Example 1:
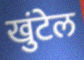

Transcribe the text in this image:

खुंटेल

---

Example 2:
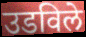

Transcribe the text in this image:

उडविले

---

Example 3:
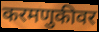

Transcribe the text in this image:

करमणुकीवर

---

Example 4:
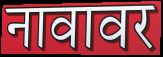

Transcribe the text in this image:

नावावर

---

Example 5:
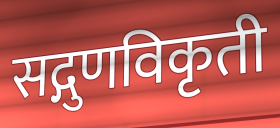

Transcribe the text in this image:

सद्गुणविकृती